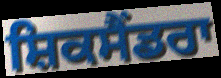
ਸ਼ਿਕਸੈਂਡਰਾ